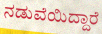
ನಡುವೆಯಿದ್ದಾರೆ